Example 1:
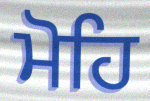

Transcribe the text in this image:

ਮੋਹਿ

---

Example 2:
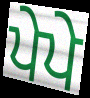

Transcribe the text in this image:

ਪੇਪੇ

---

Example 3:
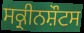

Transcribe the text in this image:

ਸਕ੍ਰੀਨਸ਼ੌਟਸ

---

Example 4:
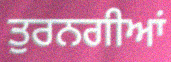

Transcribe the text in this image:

ਤੁਰਨਗੀਆਂ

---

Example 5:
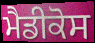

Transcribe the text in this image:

ਮੈਡੀਕੋਸ